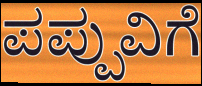
ಪಪ್ಪುವಿಗೆ